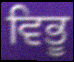
ਵਿਭੂ